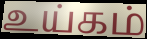
உய்கம்